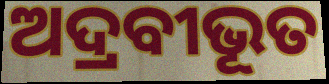
ଅଦ୍ରବୀଭୂତ